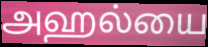
அஹல்யை